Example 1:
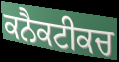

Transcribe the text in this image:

ਕਨੈਕਟੀਕਚ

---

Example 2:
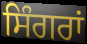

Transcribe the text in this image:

ਸਿੰਗਰਾਂ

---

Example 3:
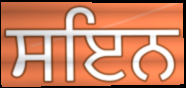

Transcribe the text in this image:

ਸਇਨ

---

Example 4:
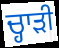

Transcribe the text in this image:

ਚ੍ਹਾੜੀ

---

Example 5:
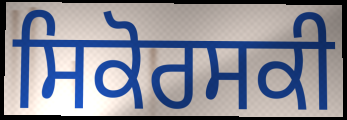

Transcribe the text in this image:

ਸਿਕੋਰਸਕੀ